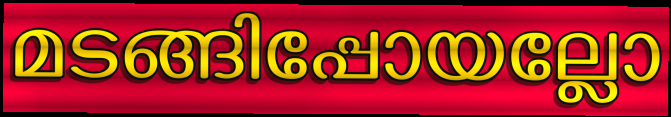
മടങ്ങിപ്പോയല്ലോ